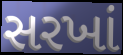
સરખાં